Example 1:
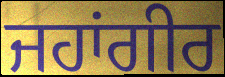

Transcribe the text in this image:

ਜਹਾਂਗੀਰ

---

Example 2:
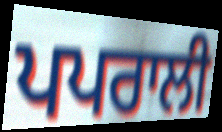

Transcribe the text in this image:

ਪਪਰਾਲੀ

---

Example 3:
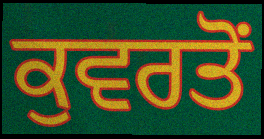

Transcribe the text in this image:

ਕੁਵਰਤੋਂ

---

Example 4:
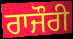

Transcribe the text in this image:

ਰਾਜੌਰੀ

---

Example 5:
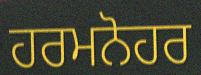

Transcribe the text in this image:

ਹਰਮਨੋਹਰ